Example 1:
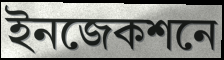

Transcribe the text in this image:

ইনজেকশনে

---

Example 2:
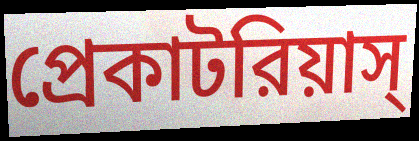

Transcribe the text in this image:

প্রেকাটরিয়াস্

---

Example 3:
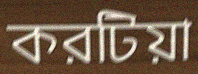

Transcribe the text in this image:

করটিয়া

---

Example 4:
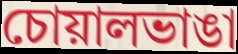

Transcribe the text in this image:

চোয়ালভাঙা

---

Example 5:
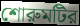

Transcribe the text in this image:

শোরুমটির